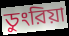
ডুংরিয়া